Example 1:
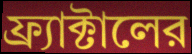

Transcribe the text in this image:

ফ্র্যাক্টালের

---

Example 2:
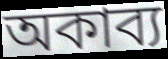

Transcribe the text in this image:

অকাব্য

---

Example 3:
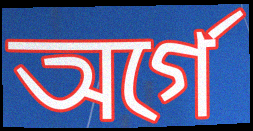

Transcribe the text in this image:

অর্গে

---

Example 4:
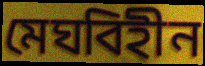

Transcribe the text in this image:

মেঘবিহীন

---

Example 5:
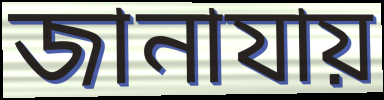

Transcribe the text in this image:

জানাযায়